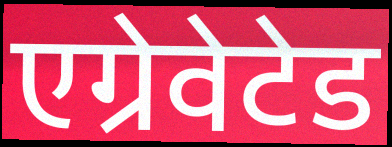
एग्रेवेटेड